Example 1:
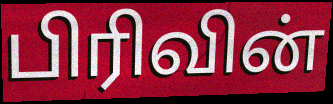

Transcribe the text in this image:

பிரிவின்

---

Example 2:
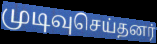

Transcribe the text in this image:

முடிவுசெய்தனர்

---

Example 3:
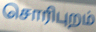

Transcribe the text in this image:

சொரிபுறம்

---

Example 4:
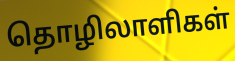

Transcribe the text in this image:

தொழிலாளிகள்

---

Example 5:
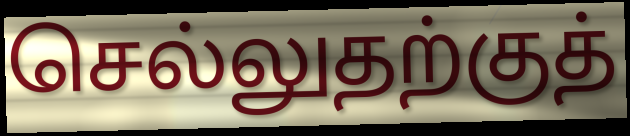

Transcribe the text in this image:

செல்லுதற்குத்